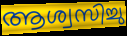
ആശ്വസിച്ചു